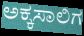
ಅಕ್ಕಸಾಲಿಗ